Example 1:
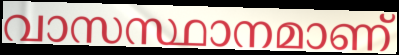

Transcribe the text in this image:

വാസസ്ഥാനമാണ്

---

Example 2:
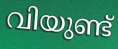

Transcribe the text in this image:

വിയുണ്ട്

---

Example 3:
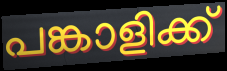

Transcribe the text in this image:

പങ്കാളിക്ക്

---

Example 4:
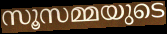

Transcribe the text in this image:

സൂസമ്മയുടെ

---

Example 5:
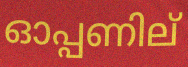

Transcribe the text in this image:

ഓപ്പണില്